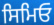
ਸਿਮਿਓ